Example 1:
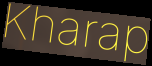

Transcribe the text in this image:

Kharap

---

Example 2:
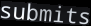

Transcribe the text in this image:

submits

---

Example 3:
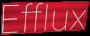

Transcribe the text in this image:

Efflux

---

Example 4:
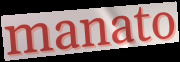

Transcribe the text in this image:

manato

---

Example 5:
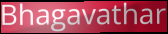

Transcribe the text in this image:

Bhagavathar